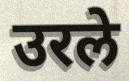
उरले